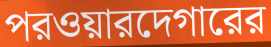
পরওয়ারদেগারের